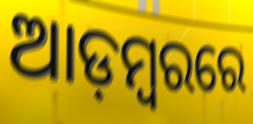
ଆଡ଼ମ୍ୱରରେ